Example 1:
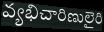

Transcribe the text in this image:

వ్యభిచారిణులైరి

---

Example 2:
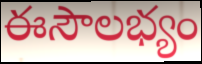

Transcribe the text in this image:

ఈసౌలభ్యం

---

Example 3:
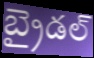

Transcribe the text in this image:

బ్రైడల్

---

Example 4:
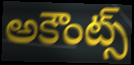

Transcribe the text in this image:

అకౌంట్స్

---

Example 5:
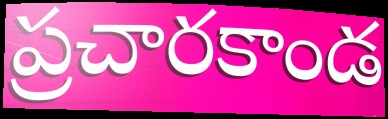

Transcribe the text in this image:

ప్రచారకాండ